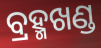
ବ୍ରହ୍ମଖଣ୍ଡ